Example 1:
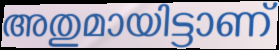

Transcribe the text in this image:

അതുമായിട്ടാണ്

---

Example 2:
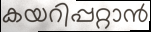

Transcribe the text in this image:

കയറിപ്പറ്റാൻ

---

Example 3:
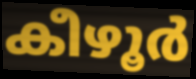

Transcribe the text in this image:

കീഴൂർ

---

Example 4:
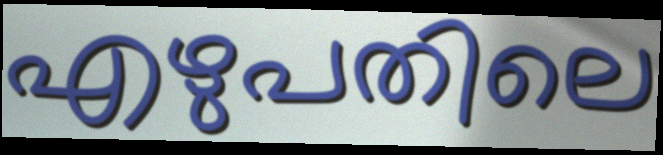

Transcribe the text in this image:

എഴുപതിലെ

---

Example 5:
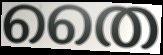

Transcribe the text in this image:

തൈ